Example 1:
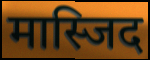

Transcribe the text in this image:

मास्जिद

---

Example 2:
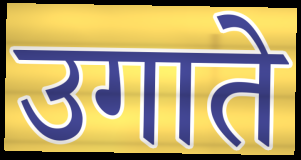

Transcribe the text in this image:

उगाते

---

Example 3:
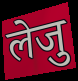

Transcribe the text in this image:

लेजु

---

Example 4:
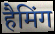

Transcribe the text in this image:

हैमिंग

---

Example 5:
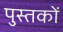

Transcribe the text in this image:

पुस्तकों